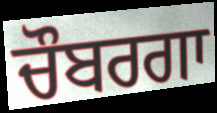
ਚੌਬਰਗਾ